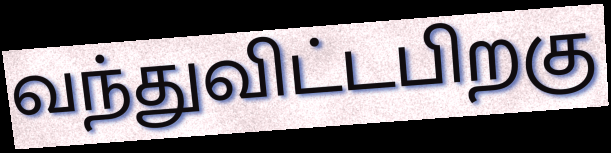
வந்துவிட்டபிறகு